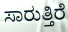
ಸಾರುತ್ತಿರೆ